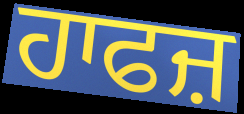
ਹਾਫਜ਼